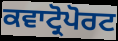
ਕਵਾਟ੍ਰੋਪੋਰਟ